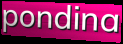
pondina